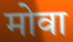
मोवा